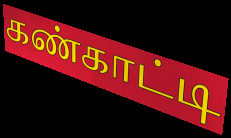
கண்காட்டி